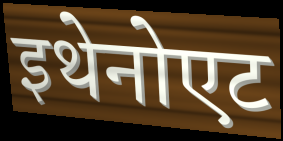
इथेनोएट